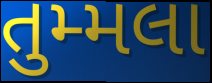
તુમ્મલા